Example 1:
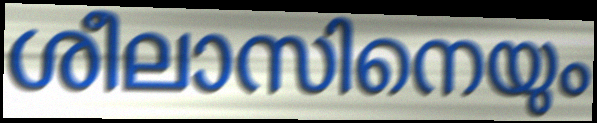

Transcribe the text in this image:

ശീലാസിനെയും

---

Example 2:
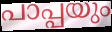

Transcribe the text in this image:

പാപ്പയും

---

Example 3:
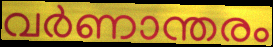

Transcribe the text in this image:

വർണാന്തരം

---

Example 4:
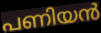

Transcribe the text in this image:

പണിയൻ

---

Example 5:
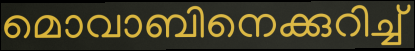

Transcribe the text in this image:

മൊവാബിനെക്കുറിച്ച്